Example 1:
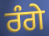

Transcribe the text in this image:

ਰੰਗੇ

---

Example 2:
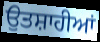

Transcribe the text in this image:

ਉਤਸ਼ਾਹੀਆਂ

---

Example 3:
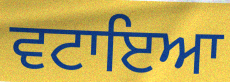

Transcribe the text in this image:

ਵਟਾਇਆ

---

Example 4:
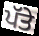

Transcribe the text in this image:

ਪੱਤੇ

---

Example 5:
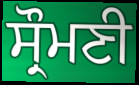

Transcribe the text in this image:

ਸ੍ਰੌਮਣੀ